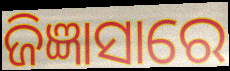
ଜିଜ୍ଞାସାରେ